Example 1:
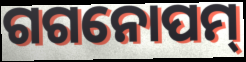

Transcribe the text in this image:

ଗଗନୋପମ୍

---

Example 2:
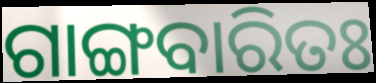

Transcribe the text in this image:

ଗାଙ୍ଗବାରିତଃ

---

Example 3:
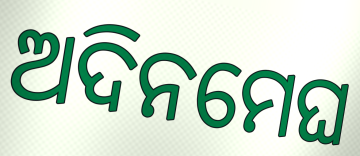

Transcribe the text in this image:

ଅଦିନମେଘ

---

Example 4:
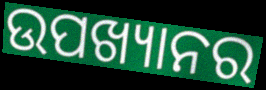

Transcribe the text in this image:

ଉପଖ୍ୟାନର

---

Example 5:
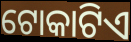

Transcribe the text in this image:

ଟୋକାଟିଏ